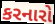
કરનારો